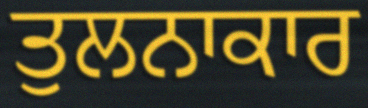
ਤੁਲਨਾਕਾਰ